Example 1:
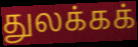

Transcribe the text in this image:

துலக்கக்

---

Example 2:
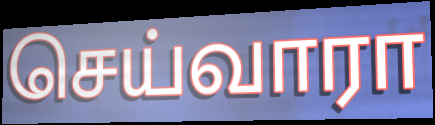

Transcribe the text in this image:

செய்வாரா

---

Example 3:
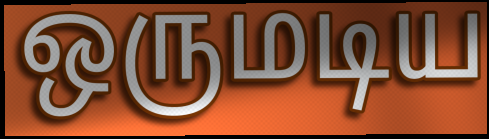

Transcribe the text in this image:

ஒருமடிய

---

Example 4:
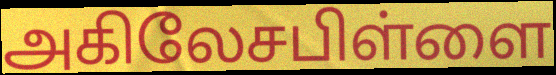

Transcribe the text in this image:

அகிலேசபிள்ளை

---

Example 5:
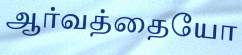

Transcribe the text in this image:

ஆர்வத்தையோ